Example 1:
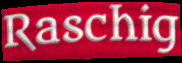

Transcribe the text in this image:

Raschig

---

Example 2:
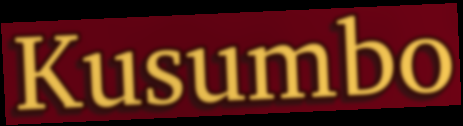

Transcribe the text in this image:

Kusumbo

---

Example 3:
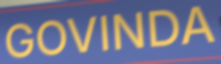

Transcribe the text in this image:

GOVINDA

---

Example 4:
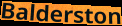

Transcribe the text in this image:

Balderston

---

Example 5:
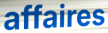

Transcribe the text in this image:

affaires